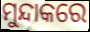
ମୁନ୍ଦାକରେ